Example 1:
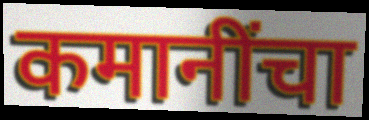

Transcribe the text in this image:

कमानींचा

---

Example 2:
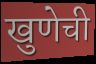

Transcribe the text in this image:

खुणेची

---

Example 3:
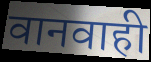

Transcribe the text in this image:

वानवाही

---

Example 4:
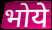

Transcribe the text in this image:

भोये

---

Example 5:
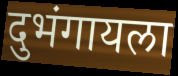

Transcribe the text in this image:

दुभंगायला